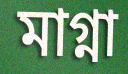
মাগ্না